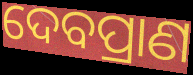
ଦେବପ୍ରାଣ